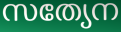
സത്യേന